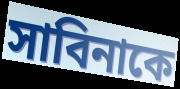
সাবিনাকে